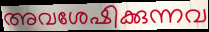
അവശേഷിക്കുന്നവ